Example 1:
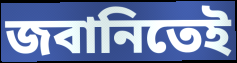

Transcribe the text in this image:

জবানিতেই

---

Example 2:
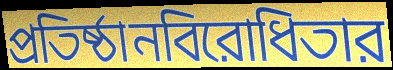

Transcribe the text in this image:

প্রতিষ্ঠানবিরোধিতার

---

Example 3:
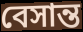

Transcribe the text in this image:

বেসান্ত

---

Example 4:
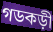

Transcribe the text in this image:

গডকড়ী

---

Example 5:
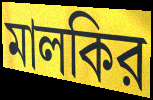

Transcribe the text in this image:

মালকির